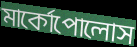
মার্কোপোলোস